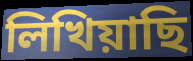
লিখিয়াছি